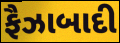
ફૈઝાબાદી